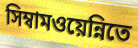
সিম্বামওয়েন্নিতে